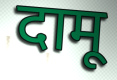
दामू